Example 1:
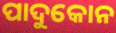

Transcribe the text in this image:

ପାଦୁକୋନ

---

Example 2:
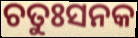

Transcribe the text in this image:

ଚତୁଃସନକ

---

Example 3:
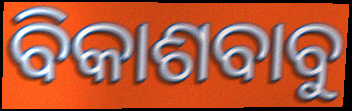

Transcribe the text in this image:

ବିକାଶବାବୁ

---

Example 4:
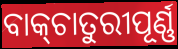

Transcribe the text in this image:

ବାକ୍‌ଚାତୁରୀପୂର୍ଣ୍ଣ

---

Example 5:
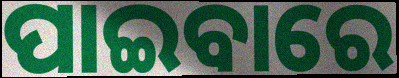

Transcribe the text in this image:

ପାଇବାରେ